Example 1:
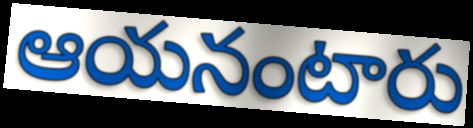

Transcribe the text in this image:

ఆయనంటారు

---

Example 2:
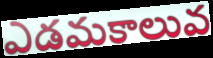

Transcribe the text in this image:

ఎడమకాలువ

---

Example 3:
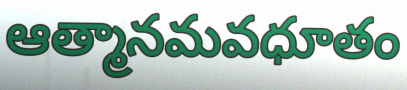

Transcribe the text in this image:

ఆత్మానమవధూతం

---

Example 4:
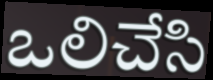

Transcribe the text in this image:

ఒలిచేసి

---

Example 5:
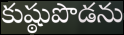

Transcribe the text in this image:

కుష్ఠుపొడను